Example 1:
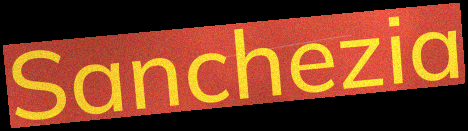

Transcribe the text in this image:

Sanchezia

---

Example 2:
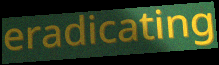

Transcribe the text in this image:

eradicating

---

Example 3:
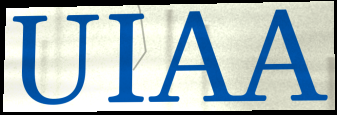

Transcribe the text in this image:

UIAA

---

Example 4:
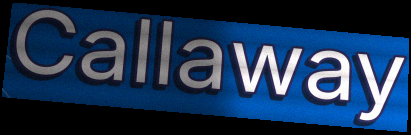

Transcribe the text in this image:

Callaway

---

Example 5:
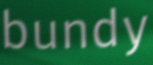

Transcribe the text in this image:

bundy